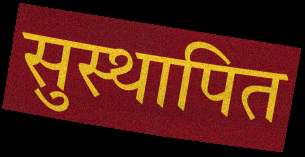
सुस्थापित